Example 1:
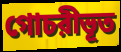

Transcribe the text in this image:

গোচরীভূত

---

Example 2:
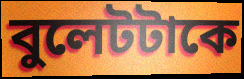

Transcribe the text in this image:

বুলেটটাকে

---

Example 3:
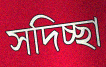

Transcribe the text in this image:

সদিচ্ছা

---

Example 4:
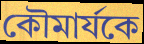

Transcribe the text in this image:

কৌমার্যকে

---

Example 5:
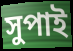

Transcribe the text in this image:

সুপাই